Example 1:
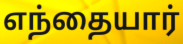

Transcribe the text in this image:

எந்தையார்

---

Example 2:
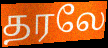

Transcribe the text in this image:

தரலே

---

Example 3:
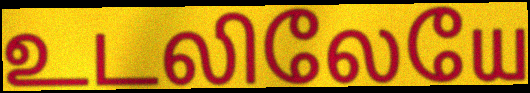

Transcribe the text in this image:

உடலிலேயே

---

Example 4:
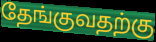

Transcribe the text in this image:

தேங்குவதற்கு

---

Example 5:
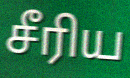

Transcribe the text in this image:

சீரிய